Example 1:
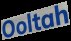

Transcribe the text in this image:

Ooltah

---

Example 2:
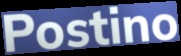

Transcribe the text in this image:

Postino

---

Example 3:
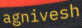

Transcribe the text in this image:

agnivesh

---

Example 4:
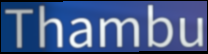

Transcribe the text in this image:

Thambu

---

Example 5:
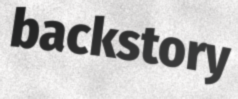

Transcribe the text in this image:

backstory